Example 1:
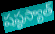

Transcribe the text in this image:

షష్ఠస్యాత్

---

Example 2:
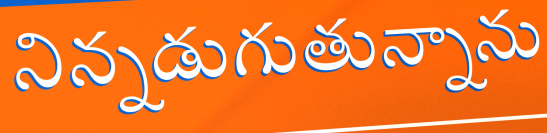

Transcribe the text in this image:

నిన్నడుగుతున్నాను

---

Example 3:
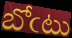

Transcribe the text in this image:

బోఁటు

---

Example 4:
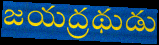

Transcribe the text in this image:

జయద్రథుడు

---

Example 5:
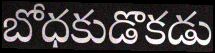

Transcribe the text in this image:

బోధకుడొకడు